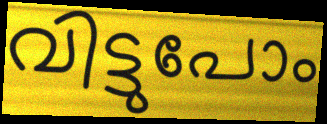
വിട്ടുപോം